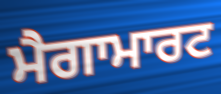
ਮੈਗਾਮਾਰਟ